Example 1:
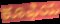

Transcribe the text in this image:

ಕೂಫಿಯ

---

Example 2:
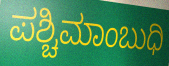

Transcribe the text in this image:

ಪಶ್ಚಿಮಾಂಬುಧಿ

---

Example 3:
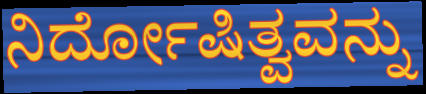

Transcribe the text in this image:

ನಿರ್ದೋಷಿತ್ವವನ್ನು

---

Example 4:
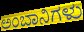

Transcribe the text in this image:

ಅಂಬಾನಿಗಳು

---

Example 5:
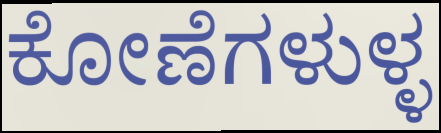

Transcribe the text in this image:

ಕೋಣೆಗಳುಳ್ಳ